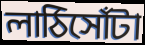
লাঠিসোঁটা